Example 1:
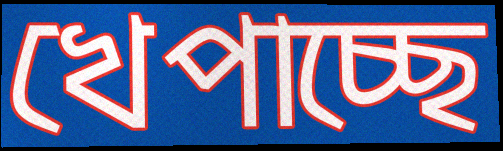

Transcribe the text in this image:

খেপাচ্ছে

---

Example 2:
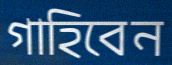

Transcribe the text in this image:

গাহিবেন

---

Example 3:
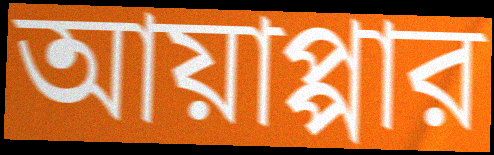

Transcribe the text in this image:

আয়াপ্পার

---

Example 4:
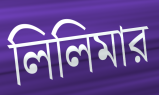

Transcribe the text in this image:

লিলিমার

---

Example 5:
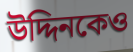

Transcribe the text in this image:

উদ্দিনকেও